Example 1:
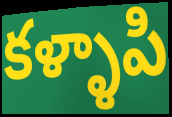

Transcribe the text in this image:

కళ్ళాపి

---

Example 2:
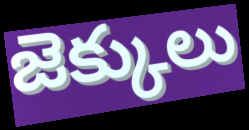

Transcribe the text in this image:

జెక్కులు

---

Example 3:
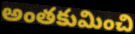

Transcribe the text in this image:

అంతకుమించి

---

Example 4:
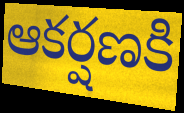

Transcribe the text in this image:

ఆకర్షణకి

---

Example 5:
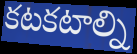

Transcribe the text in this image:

కటకటాల్ని